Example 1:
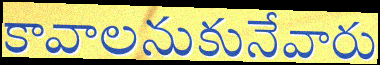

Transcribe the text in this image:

కావాలనుకునేవారు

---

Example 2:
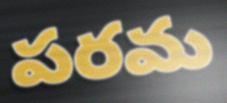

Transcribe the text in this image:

పరమ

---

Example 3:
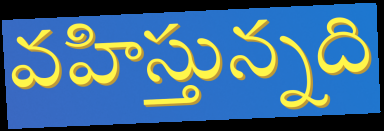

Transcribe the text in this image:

వహిస్తున్నది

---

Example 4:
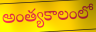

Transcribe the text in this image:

అంత్యకాలంలో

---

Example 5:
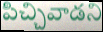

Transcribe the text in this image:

పిచ్చివాడని